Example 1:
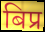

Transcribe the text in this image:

बिप्र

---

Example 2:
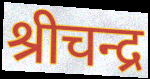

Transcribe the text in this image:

श्रीचन्द्र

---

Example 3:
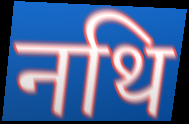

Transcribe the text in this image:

नथि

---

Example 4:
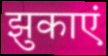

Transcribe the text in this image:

झुकाएं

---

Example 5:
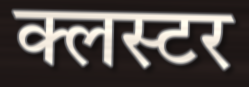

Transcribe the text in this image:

क्‍लस्‍टर